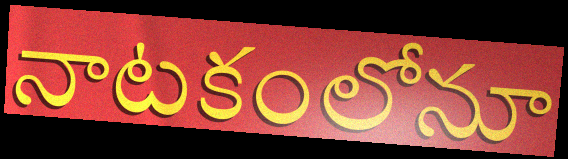
నాటకంలోనూ